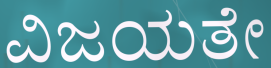
ವಿಜಯತೇ